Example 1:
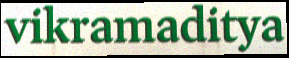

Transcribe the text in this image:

vikramaditya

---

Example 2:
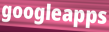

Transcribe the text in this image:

googleapps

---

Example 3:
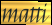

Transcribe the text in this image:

matti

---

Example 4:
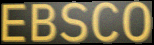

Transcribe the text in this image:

EBSCO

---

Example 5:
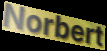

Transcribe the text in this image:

Norbert